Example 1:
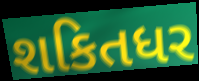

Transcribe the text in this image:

શકિતધર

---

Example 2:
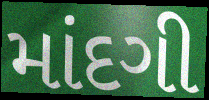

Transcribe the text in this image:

માંદગી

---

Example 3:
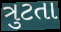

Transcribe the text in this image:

ત્રુટતા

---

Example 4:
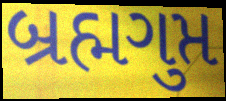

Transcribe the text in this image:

બ્રહ્મગુપ્ત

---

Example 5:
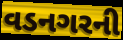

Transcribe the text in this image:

વડનગરની